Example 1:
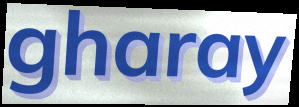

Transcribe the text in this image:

gharay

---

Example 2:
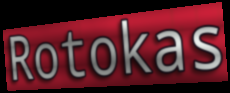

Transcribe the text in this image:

Rotokas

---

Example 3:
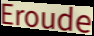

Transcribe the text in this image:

Eroude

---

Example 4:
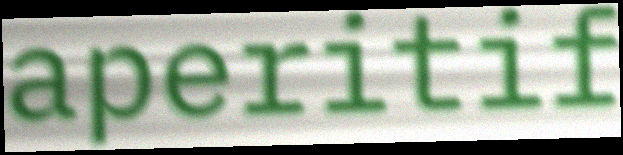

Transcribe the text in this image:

aperitif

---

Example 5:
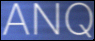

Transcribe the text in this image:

ANQ